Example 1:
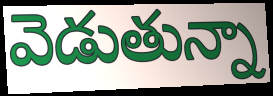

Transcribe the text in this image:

వెడుతున్నా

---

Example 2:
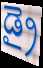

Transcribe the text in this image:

డ్రై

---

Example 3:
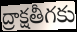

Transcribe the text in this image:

ద్రాక్షతీగకు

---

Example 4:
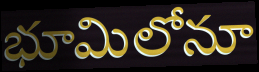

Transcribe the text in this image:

భూమిలోనూ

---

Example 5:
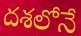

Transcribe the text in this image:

దశలోనే